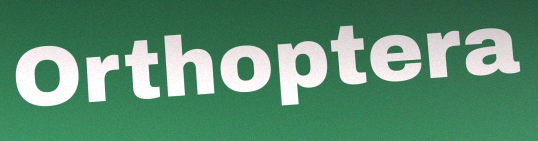
Orthoptera